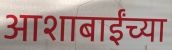
आशाबाईंच्या